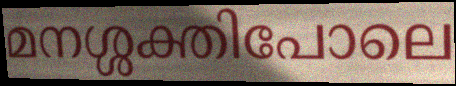
മനശ്ശക്തിപോലെ